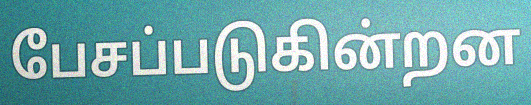
பேசப்படுகின்றன